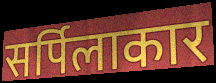
सर्पिलाकार